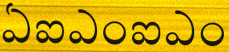
ఏఐఎంఐఎం